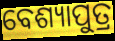
ବେଶ୍ୟାପୁତ୍ର